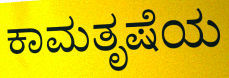
ಕಾಮತೃಷೆಯ